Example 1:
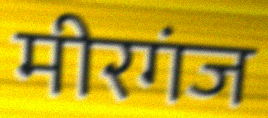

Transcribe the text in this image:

मीरगंज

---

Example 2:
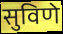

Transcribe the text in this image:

सुविणे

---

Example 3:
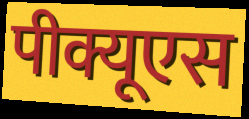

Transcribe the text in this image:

पीक्यूएस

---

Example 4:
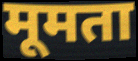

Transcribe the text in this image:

मूमता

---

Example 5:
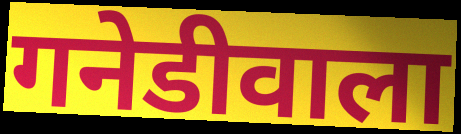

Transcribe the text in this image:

गनेडीवाला